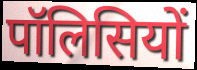
पॉलिसियों